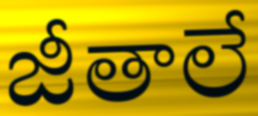
జీతాలే